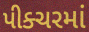
પીક્ચરમાં